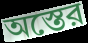
অস্তের